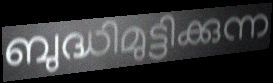
ബുദ്ധിമുട്ടിക്കുന്ന